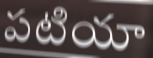
పటియా